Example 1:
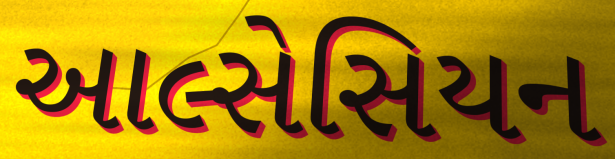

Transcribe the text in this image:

આલ્સેસિયન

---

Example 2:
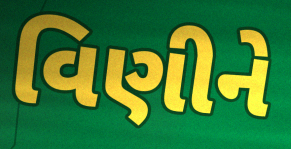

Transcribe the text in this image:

વિણીને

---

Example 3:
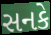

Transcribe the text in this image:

સનકે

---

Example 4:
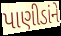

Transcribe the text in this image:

પાણીડાંને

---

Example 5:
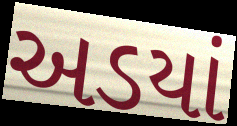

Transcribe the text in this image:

અડયાં